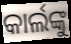
କାର୍ଲଙ୍କୁ